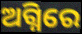
ଅଗ୍ନିରେ